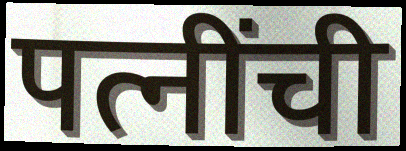
पत्नींची